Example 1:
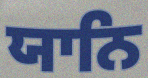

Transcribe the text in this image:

ਯਾਨਿ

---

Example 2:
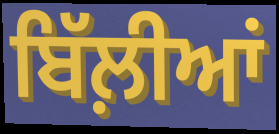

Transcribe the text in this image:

ਬਿੱਲ਼ੀਆਂ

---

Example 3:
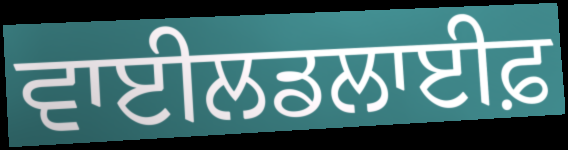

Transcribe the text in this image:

ਵਾਈਲਡਲਾਈਫ਼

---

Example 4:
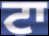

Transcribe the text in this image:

ਟਾ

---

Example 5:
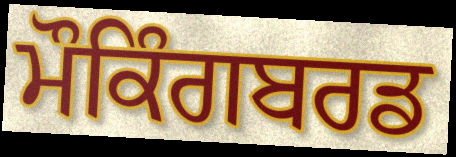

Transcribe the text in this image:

ਮੌਕਿੰਗਬਰਡ